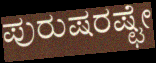
ಪುರುಷರಷ್ಟೇ